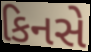
કિનસે